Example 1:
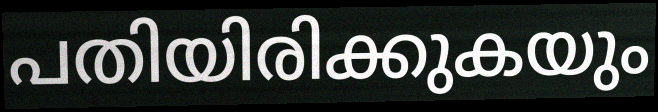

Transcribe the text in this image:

പതിയിരിക്കുകയും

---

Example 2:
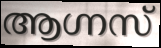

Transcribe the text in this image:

ആഗ്നസ്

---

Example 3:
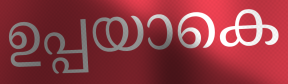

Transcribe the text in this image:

ഉപ്പയാകെ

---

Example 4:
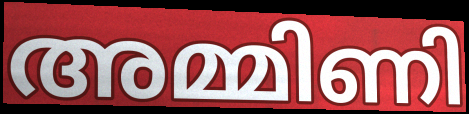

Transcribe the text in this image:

അമ്മിണി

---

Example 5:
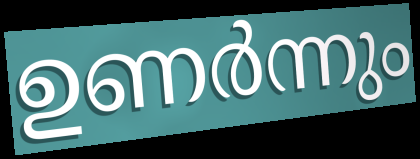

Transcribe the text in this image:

ഉണർന്നും